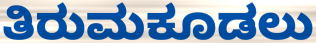
ತಿರುಮಕೂಡಲು